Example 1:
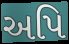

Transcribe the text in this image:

અપિ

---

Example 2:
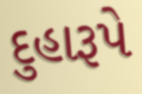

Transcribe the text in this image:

દુહારૂપે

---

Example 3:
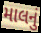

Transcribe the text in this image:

માલનું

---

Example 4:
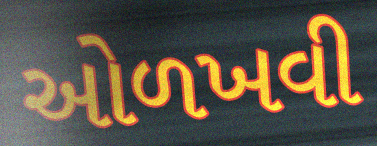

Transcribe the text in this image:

ઓળખવી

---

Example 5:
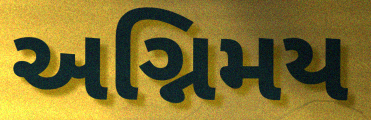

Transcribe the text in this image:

અગ્નિમય